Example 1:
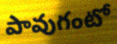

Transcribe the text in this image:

పావుగంటో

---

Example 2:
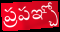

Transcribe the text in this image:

ప్రపఞ్చో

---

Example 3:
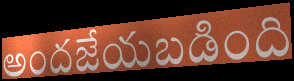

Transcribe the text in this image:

అందజేయబడింది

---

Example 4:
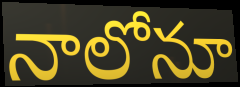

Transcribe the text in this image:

నాలోనూ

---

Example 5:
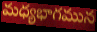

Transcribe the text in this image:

మధ్యభాగమున